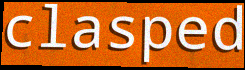
clasped